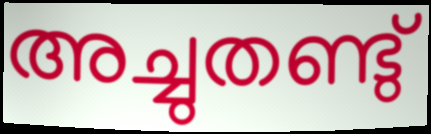
അച്ചുതണ്ടു്